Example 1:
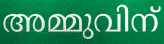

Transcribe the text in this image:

അമ്മുവിന്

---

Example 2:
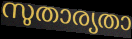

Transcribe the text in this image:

സുതാര്യതാ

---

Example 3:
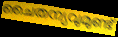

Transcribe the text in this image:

ചൈതന്യവുമുണ്ട്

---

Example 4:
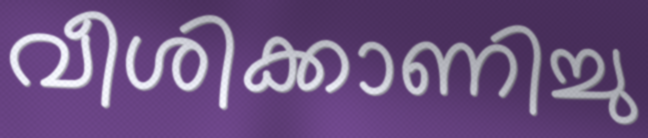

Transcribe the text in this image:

വീശിക്കാണിച്ചു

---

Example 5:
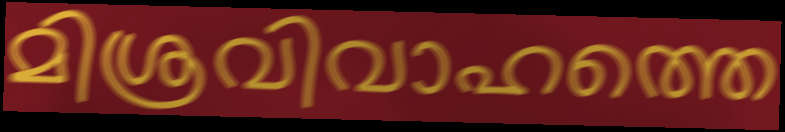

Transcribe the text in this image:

മിശ്രവിവാഹത്തെ